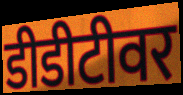
डीडीटीवर